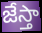
జేస్తా